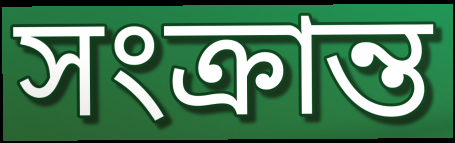
সংক্রান্ত